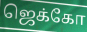
ஜெக்கோ